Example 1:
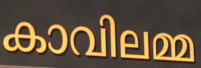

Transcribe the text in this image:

കാവിലമ്മ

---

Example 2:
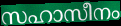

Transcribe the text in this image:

സഹാസീനം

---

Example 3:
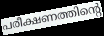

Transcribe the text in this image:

പരീക്ഷണത്തിന്റെ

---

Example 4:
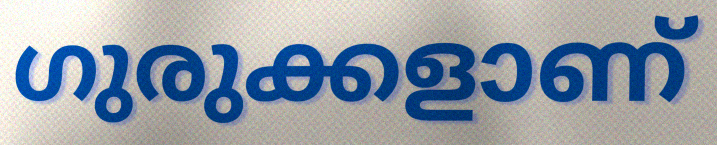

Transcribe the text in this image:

ഗുരുക്കളാണ്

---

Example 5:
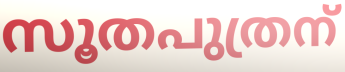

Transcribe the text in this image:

സൂതപുത്രന്